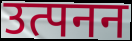
उत्पनन